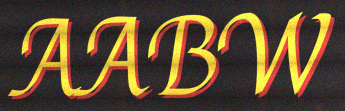
AABW